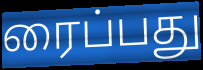
ரைப்பது